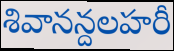
శివానన్దలహరీ